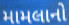
મામલાનો